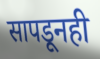
सापडूनही